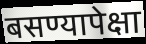
बसण्यापेक्षा